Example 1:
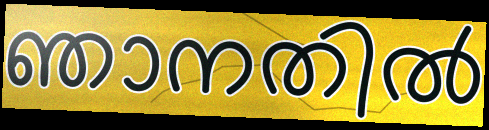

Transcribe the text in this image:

ഞാനതിൽ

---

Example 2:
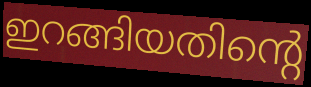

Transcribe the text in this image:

ഇറങ്ങിയതിന്റെ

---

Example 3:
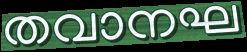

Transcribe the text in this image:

തവാനഘ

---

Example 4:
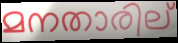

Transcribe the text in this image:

മനതാരില്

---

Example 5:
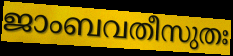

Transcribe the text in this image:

ജാംബവതീസുതഃ